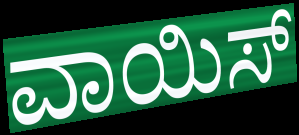
ವಾಯಿಸ್